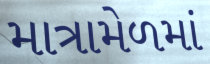
માત્રામેળમાં